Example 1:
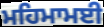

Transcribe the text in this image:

ਮਹਿਮਾਮਈ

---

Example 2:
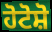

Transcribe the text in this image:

ਹੋਟੋਸ਼ੋ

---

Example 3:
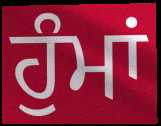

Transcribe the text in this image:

ਹੁੰਮਾਂ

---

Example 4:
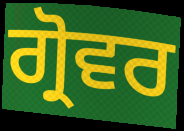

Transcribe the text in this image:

ਗ੍ਰੋਵਰ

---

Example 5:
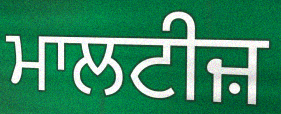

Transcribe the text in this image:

ਮਾਲਟੀਜ਼